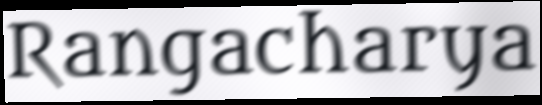
Rangacharya